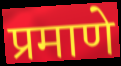
प्रमाणे